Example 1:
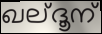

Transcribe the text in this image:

ഖല്ദൂന്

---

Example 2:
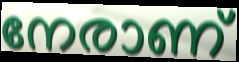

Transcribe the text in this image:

നേരാണ്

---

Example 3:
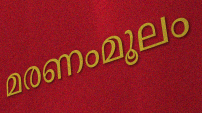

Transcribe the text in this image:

മരണംമൂലം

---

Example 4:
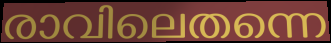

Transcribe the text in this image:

രാവിലെതന്നെ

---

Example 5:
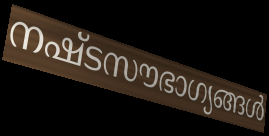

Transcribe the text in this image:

നഷ്ടസൗഭാഗ്യങ്ങൾ